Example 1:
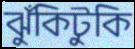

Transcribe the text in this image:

ঝুঁকিটুকি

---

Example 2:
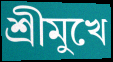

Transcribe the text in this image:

শ্রীমুখে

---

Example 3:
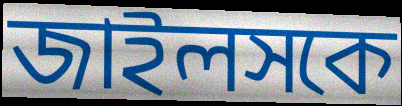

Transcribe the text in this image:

জাইলসকে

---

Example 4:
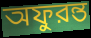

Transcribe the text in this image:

অফুরন্ত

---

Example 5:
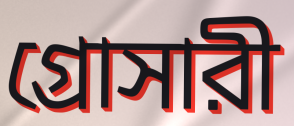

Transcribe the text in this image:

গ্রোসারী